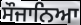
ਸੌਜਾਨਿਆ